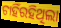
ଚାହିଁରହିଥିଲା